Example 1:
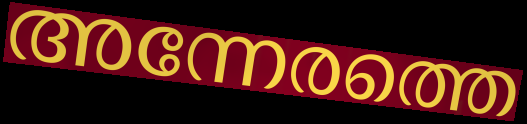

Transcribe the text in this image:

അന്നേരത്തെ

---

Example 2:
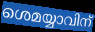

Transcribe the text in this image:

ശെമയ്യാവിന്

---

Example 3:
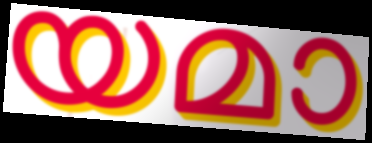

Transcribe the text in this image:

യമാ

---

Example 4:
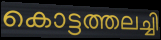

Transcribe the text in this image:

കൊട്ടത്തലച്ചി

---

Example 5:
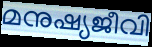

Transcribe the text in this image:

മനുഷ്യജീവി